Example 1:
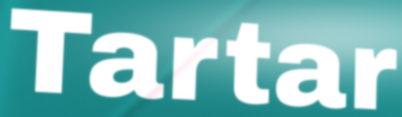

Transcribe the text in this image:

Tartar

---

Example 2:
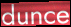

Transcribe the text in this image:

dunce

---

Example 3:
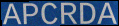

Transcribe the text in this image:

APCRDA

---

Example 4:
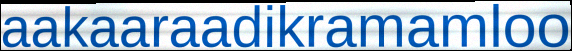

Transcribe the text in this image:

aakaaraadikramamloo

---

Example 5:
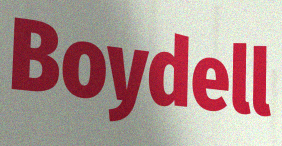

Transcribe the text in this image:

Boydell